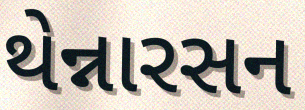
થેન્નારસન